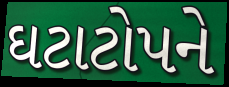
ઘટાટોપને